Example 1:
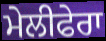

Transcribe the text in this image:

ਮੇਲੀਫੇਰਾ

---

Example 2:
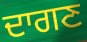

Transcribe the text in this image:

ਦਾਗਣ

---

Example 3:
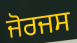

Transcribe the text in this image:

ਜੋਰਜਸ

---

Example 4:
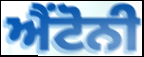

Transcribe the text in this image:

ਐਂਟੋਨੀ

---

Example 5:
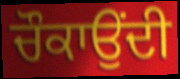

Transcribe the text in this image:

ਚੌਕਾਉਂਦੀ